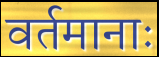
वर्तमानाः